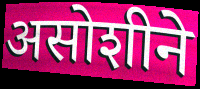
असोशीने